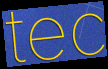
tec